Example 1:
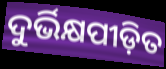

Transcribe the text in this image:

ଦୁର୍ଭିକ୍ଷପୀଡ଼ିତ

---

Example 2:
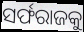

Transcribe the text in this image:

ସର୍ଫରାଜକୁ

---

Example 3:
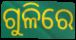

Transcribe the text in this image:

ଗୁଳିରେ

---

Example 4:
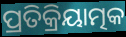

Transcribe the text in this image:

ପ୍ରତିକ୍ରିୟାତ୍ମକ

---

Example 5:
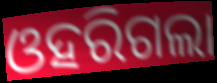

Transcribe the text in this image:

ଓହରିଗଲା